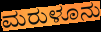
ಮರುಳೂನು